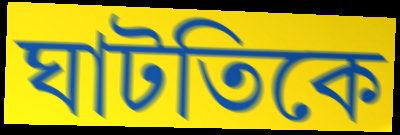
ঘাটতিকে